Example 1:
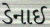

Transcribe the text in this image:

ડેનાઈ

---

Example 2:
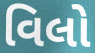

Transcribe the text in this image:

વિલો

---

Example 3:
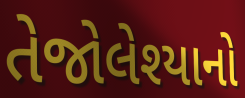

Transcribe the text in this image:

તેજોલેશ્યાનો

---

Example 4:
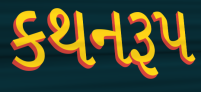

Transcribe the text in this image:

કથનરૂપ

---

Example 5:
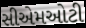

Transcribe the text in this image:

સીએમઓટી